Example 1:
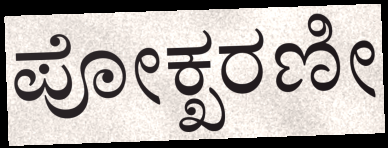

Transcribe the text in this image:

ಪೋಕ್ಖರಣೀ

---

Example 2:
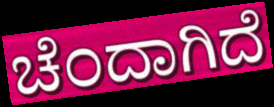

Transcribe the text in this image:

ಚೆಂದಾಗಿದೆ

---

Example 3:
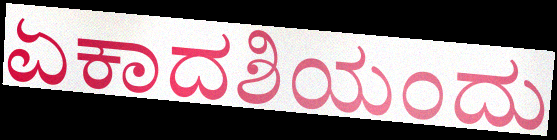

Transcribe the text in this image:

ಏಕಾದಶಿಯಂದು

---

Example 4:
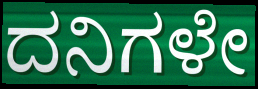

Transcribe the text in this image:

ದನಿಗಳೇ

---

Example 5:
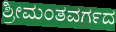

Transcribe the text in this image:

ಶ್ರೀಮಂತವರ್ಗದ